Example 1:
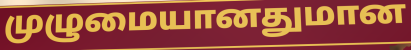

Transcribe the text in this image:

முழுமையானதுமான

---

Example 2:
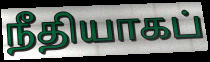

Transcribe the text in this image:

நீதியாகப்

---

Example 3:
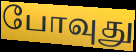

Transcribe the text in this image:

போவுது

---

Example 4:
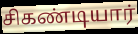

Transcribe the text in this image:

சிகண்டியார்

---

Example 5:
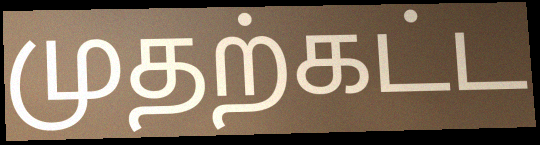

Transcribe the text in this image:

முதற்கட்ட